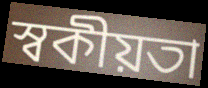
স্বকীয়তা